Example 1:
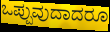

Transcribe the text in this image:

ಒಪ್ಪುವುದಾದರೂ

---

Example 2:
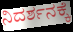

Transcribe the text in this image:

ನಿದರ್ಶನಕ್ಕೆ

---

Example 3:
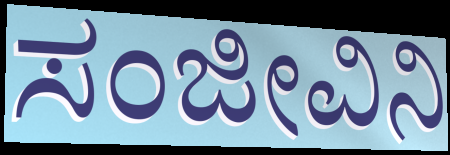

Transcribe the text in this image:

ಸಂಜೀವಿನಿ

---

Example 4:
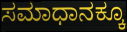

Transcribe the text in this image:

ಸಮಾಧಾನಕ್ಕೂ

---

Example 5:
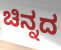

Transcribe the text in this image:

ಚಿನ್ನದ